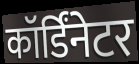
कॉर्डिंनेटर